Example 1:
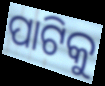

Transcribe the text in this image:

ପାଟିକୁ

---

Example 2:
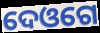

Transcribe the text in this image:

ଦେଓଗେ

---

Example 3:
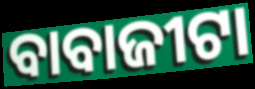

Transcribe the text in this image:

ବାବାଜୀଟା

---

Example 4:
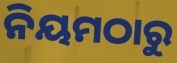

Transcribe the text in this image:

ନିୟମଠାରୁ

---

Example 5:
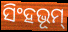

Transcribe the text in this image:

ସିଂହଭୂମ୍